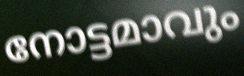
നോട്ടമാവും